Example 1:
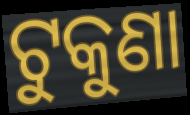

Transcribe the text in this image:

ଟୁକୁଣା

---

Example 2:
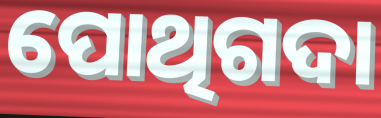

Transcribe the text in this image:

ପୋଥିଗଦା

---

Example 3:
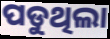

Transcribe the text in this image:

ପଡୁଥିଲା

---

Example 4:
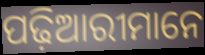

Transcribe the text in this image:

ପଢ଼ିଆରୀମାନେ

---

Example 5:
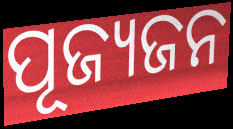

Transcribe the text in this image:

ପୂଜ୍ୟଜନ